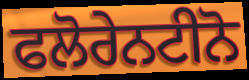
ਫਲੋਰੇਨਟੀਨੋ